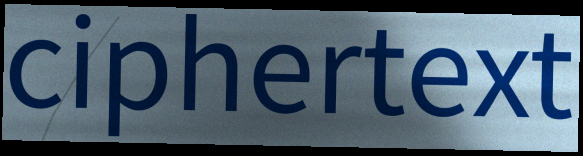
ciphertext